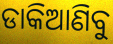
ଡାକିଆଣିବୁ